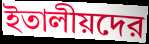
ইতালীয়দের